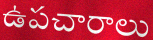
ఉపచారాలు